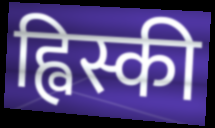
ह्विस्की